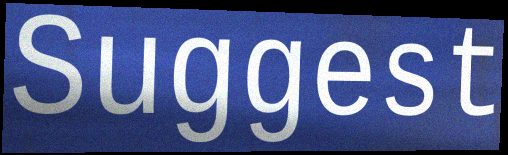
Suggest